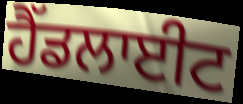
ਹੈੱਡਲਾਈਟ